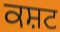
ਕਸ਼ਟ